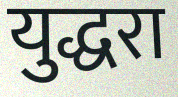
युद्धरा